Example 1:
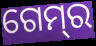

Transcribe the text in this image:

ଗେମ୍‌ର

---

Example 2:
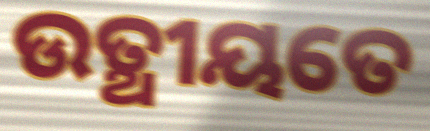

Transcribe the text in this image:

ଉତ୍ଥୀୟତେ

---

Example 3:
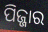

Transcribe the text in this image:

ପିଜ୍ଜାର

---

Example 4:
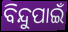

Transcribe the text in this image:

ବିନ୍ଦୁପାଇଁ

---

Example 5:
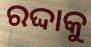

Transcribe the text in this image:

ରଦ୍ଦାକୁ